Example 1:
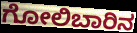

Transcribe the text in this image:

ಗೋಲಿಬಾರಿನ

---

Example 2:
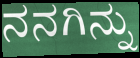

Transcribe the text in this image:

ನನಗಿನ್ನು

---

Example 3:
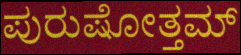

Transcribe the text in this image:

ಪುರುಷೋತ್ತಮ್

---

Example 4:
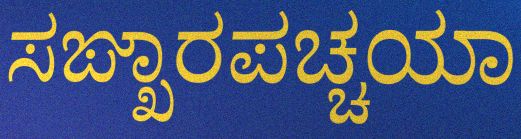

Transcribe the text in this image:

ಸಙ್ಖಾರಪಚ್ಚಯಾ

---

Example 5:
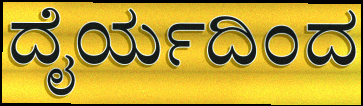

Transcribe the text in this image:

ದೈರ್ಯದಿಂದ